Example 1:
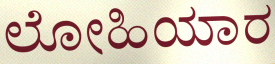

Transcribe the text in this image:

ಲೋಹಿಯಾರ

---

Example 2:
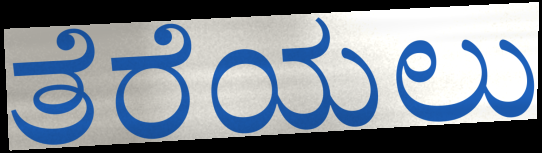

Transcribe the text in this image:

ತೆರೆಯಲು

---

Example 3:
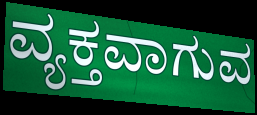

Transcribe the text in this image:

ವ್ಯಕ್ತವಾಗುವ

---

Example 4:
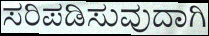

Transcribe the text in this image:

ಸರಿಪಡಿಸುವುದಾಗಿ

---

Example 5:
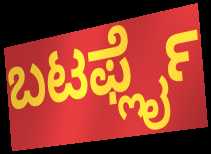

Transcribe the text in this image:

ಬಟರ್ಫ್ಲೈ